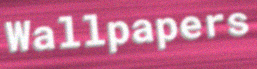
Wallpapers